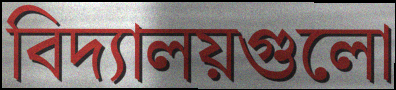
বিদ্যালয়গুলো